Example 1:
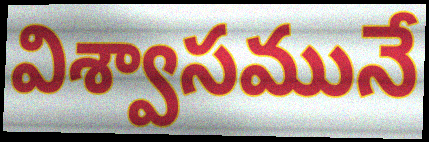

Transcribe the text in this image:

విశ్వాసమునే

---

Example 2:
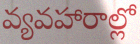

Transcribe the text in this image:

వ్యవహారాల్లో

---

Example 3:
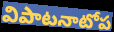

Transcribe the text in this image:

విపాటనాటోప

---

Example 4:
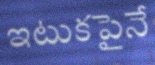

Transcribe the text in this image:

ఇటుకపైనే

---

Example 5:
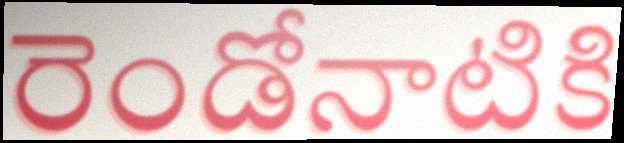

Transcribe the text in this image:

రెండోనాటికి